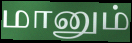
மானும்